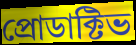
প্রোডাক্টিভ